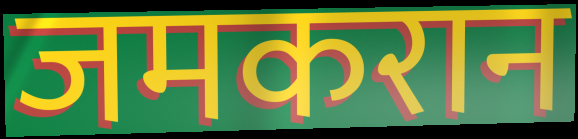
जमकरान